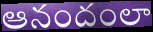
ఆనందంలా